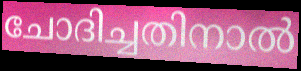
ചോദിച്ചതിനാൽ